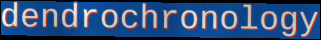
dendrochronology